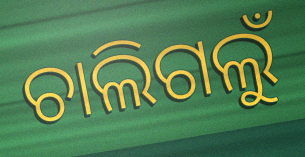
ଚାଲିଗଲୁଁ